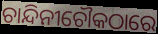
ଚାନ୍ଦିନୀଚୌକଠାରେ